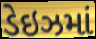
ડેઇઝમાં